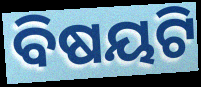
ବିଷୟଟି